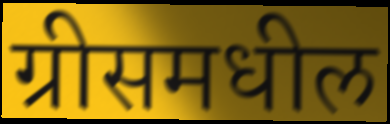
ग्रीसमधील